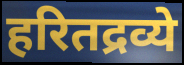
हरितद्रव्ये